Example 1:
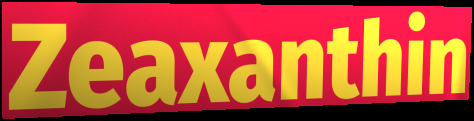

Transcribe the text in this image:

Zeaxanthin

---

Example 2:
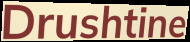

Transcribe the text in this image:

Drushtine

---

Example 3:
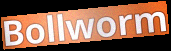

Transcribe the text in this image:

Bollworm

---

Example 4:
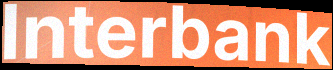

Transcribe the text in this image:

Interbank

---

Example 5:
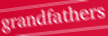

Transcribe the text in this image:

grandfathers